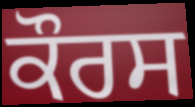
ਕੌਰਸ